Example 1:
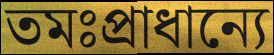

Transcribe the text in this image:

তমঃপ্রাধান্যে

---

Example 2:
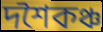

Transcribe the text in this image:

দশৈকঞ্চ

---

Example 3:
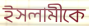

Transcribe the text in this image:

ইসলামীকে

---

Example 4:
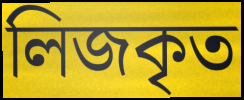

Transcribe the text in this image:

লিজকৃত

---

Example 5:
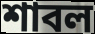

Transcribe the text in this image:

শাবল